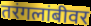
तरंगलांबीवर